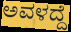
ಅವಳದ್ದೆ